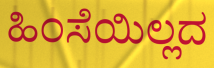
ಹಿಂಸೆಯಿಲ್ಲದ